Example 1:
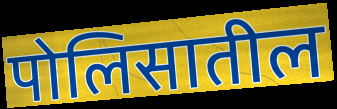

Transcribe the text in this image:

पोलिसातील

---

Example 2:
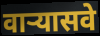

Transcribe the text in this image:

वाऱ्यासवे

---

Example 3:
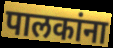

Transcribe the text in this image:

पालकांना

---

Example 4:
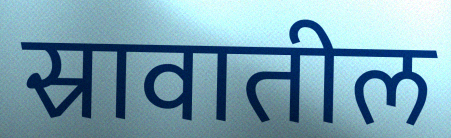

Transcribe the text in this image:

स्रावातील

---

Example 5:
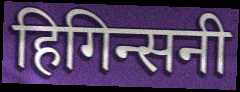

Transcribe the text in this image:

हिगिन्सनी